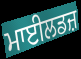
ਮਾਈਲਡਜ਼